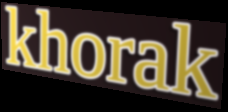
khorak